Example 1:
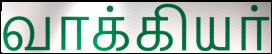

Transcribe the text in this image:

வாக்கியர்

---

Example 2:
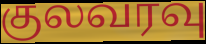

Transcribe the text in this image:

குலவரவு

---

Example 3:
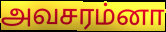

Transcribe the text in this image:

அவசரம்னா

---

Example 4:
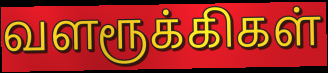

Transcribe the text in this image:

வளரூக்கிகள்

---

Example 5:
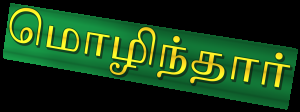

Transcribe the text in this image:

மொழிந்தார்